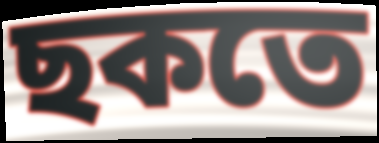
ছকতে